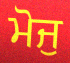
ਮੋਜੁ